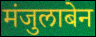
मंजुलाबेन